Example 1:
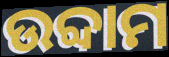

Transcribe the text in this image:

ଉବ୍ଦାମ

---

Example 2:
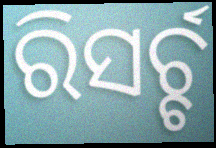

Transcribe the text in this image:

ରିସର୍ଚ୍ଚ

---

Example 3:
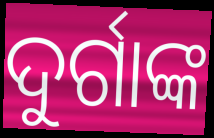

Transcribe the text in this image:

ଦୁର୍ଗାଙ୍କ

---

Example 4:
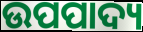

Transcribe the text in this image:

ଉପପାଦ୍ୟ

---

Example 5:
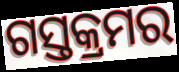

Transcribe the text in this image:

ଗସ୍ତକ୍ରମର